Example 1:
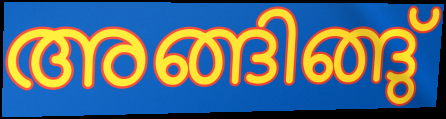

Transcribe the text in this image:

അങ്ങിങ്ങു്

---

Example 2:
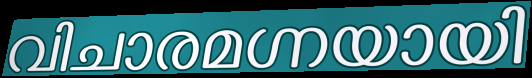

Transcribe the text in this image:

വിചാരമഗ്നയായി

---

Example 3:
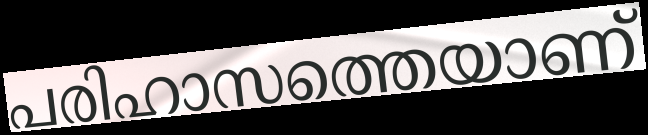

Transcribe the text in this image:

പരിഹാസത്തെയാണ്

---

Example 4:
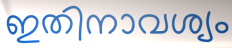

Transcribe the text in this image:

ഇതിനാവശ്യം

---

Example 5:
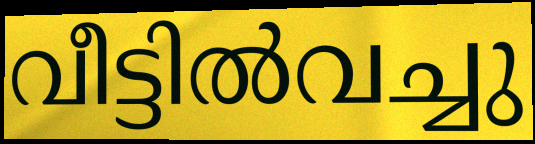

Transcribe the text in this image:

വീട്ടിൽവച്ചു